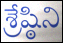
శ్రేష్ఠిని